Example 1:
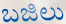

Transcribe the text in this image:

ಬಜಿಲು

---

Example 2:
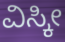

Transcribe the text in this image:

ವಿಸ್ಕೀ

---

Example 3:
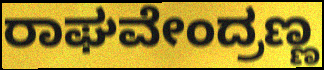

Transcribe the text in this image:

ರಾಘವೇಂದ್ರಣ್ಣ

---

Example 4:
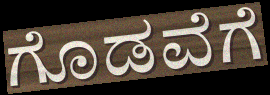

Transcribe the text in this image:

ಗೊಡವೆಗೆ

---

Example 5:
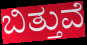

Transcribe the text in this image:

ಬಿತ್ತುವೆ